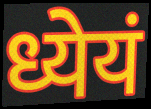
ध्येयं